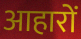
आहारों